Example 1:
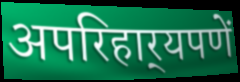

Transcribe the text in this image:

अपरिहार्यपणें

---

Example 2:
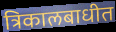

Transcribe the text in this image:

त्रिकालबाधीत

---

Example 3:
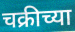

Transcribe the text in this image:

चक्रीच्या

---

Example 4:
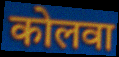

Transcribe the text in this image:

कोलवा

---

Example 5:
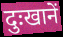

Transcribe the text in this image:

दुःखानें